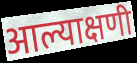
आल्याक्षणी